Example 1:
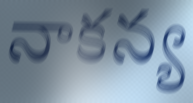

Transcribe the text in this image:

నాకన్య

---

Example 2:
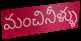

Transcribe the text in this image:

మంచినీళ్ళు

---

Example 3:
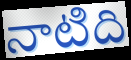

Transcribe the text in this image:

నాటిది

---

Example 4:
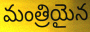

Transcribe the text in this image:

మంత్రియైన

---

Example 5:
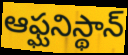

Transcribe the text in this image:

ఆఫ్ఘనిస్థాన్